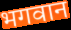
भगवान